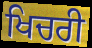
ਖਿਚਰੀ